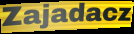
Zajadacz